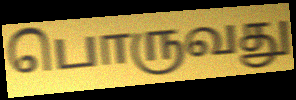
பொருவது